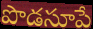
పొడసూపే